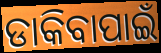
ଡାକିବାପାଇଁ